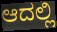
ಆದಲ್ಲಿ